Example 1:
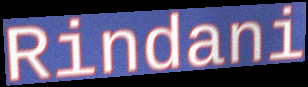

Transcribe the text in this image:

Rindani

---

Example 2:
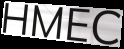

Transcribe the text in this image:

HMEC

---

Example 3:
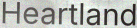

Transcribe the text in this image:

Heartland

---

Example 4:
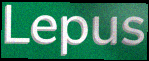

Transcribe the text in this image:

Lepus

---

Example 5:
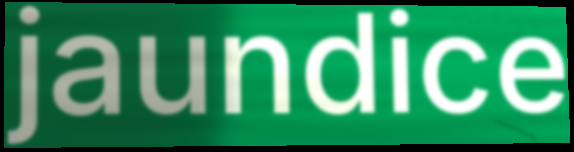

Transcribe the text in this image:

jaundice